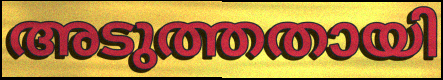
അടുത്തതായി